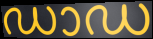
ഡാഡ